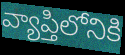
వ్యాప్తిలోనికి